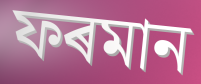
ফৰমান